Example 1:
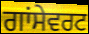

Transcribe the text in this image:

ਗਾਂਸੇਵਰਟ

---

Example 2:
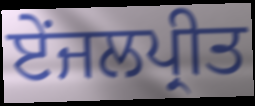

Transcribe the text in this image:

ਏਂਜਲਪ੍ਰੀਤ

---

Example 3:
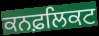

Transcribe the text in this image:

ਕਨਫ਼ਲਿਕਟ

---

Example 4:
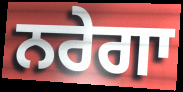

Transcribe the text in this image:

ਨਰੇਗਾ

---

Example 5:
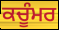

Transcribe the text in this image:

ਕਚੂੰਮਰ